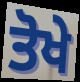
ਤੋਖੇ